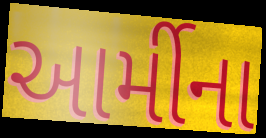
આર્મીના